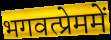
भगवत्प्रेममें